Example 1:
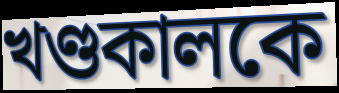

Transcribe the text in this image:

খণ্ডকালকে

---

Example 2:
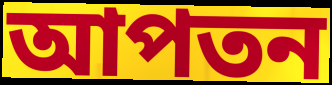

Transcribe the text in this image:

আপতন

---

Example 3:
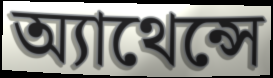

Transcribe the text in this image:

অ্যাথেন্সে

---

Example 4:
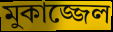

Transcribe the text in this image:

মুকাজ্জেল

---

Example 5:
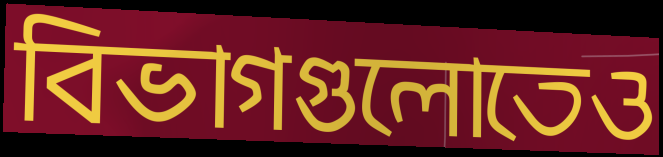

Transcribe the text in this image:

বিভাগগুলোতেও